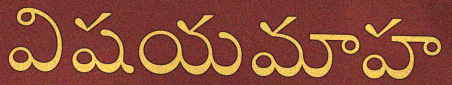
విషయమాహ